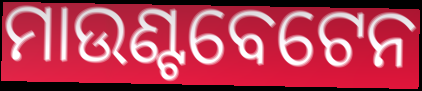
ମାଉଣ୍ଟବେଟେନ